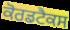
ਕੋਰਡਟੈਕਸ